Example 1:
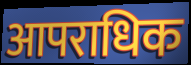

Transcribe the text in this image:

आपराधिक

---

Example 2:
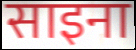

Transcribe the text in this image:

साइना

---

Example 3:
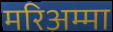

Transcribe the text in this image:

मरिअम्मा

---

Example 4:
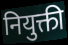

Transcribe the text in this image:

नियुक्ती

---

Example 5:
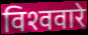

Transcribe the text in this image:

विश्ववारे